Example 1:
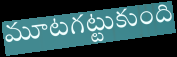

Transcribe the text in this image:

మూటగట్టుకుంది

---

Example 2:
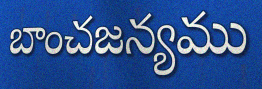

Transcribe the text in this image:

బాంచజన్యము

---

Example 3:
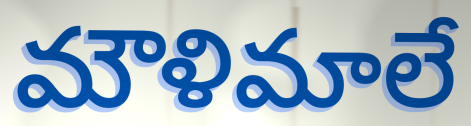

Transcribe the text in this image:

మౌళిమాలే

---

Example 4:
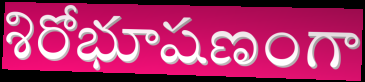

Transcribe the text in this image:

శిరోభూషణంగా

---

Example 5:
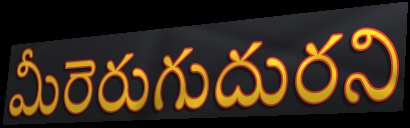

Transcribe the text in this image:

మీరెరుగుదురని